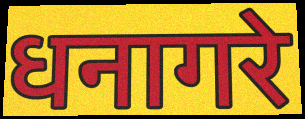
धनागरे